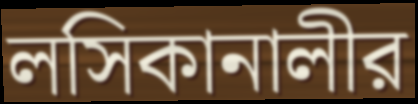
লসিকানালীর